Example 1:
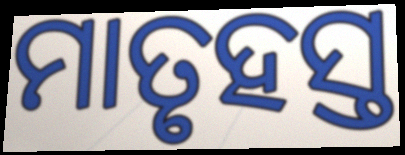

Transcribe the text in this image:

ମାତୃହସ୍ତ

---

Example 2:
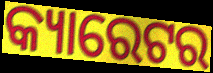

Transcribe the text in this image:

କ୍ୟାରେଟର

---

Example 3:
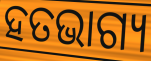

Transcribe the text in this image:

ହତଭାଗ୍ୟ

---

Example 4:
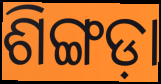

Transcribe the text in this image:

ଶିଙ୍ଗଡ଼ା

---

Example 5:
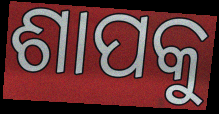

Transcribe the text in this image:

ଶାପକୁ